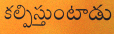
కల్పిస్తుంటాడు